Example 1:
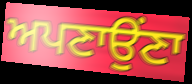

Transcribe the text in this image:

ਅਪਣਾਉਂਣਾ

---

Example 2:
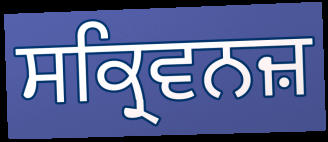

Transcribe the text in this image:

ਸਕ੍ਰਿਵਨਜ਼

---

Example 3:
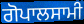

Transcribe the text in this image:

ਗੋਪਾਲਸਾਮੀ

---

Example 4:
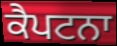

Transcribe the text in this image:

ਕੈਪਟਨਾ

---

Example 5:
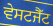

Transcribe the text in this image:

ਵੇਸਟਜੈੱਟ